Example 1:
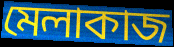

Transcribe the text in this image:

মেলাকাজ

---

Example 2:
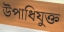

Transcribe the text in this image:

উপাধিযুক্ত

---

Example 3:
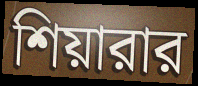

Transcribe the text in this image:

শিয়ারার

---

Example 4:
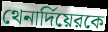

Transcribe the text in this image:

থেনার্দিয়েরকে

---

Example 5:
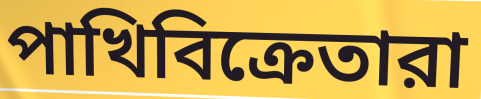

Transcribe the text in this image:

পাখিবিক্রেতারা